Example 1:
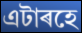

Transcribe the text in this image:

এটাৰহে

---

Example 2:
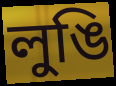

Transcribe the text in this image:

লুঙি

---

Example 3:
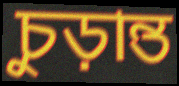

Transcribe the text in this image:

চুড়ান্ত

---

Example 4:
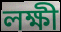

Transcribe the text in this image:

লক্ষী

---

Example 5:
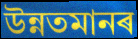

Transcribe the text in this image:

উন্নতমানৰ